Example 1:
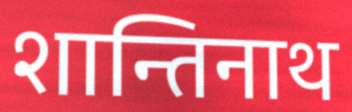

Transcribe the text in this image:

शान्तिनाथ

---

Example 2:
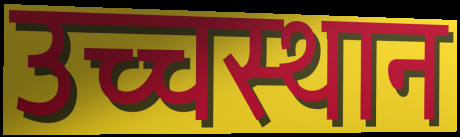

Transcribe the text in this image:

उच्चस्थान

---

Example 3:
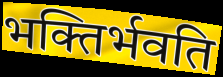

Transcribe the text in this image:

भक्तिर्भवति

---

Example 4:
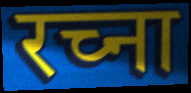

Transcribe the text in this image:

रच्ना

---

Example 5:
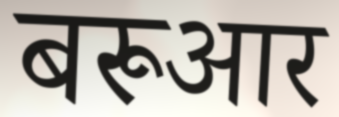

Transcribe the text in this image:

बरूआर